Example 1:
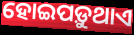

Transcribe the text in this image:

ହୋଇପଡ଼ୁଥାଏ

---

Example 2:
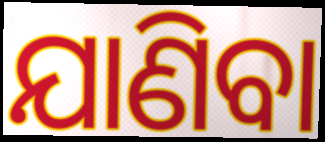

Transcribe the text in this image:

ଯାଣିବା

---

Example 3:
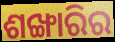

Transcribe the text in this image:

ଶଙ୍ଖାରିର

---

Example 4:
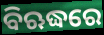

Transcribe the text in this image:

ବିଋଦ୍ଧରେ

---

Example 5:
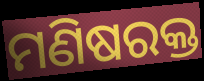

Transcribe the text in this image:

ମଣିଷରକ୍ତ